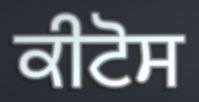
ਕੀਟੋਸ